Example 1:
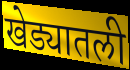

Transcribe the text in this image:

खेड्यातली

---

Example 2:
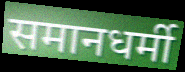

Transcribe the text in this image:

समानधर्मी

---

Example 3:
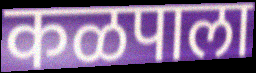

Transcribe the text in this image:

कळपाला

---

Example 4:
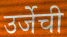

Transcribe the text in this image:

उर्जेची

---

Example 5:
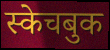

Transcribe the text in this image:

स्केचबुक